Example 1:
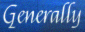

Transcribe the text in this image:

Generally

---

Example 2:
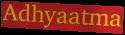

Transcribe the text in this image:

Adhyaatma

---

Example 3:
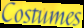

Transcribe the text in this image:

Costumes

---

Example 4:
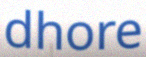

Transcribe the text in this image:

dhore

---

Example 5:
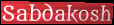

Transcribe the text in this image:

Sabdakosh